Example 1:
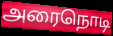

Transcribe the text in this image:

அரைநொடி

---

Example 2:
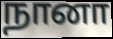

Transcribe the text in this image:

நானா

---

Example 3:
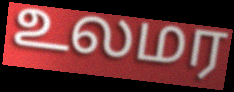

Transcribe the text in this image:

உலமர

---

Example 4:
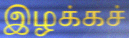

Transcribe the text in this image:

இழக்கச்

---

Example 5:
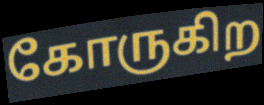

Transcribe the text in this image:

கோருகிற